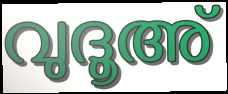
വുദൂഅ്